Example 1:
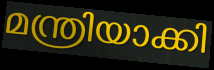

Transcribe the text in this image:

മന്ത്രിയാക്കി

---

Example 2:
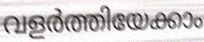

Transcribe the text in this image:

വളർത്തിയേക്കാം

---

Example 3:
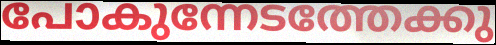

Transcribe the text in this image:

പോകുന്നേടത്തേക്കു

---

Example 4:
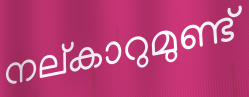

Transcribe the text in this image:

നല്കാറുമുണ്ട്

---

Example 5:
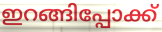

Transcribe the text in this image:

ഇറങ്ങിപ്പോക്ക്